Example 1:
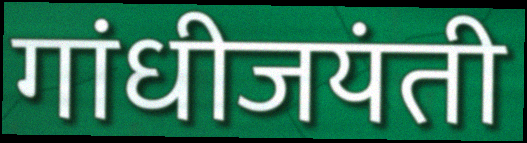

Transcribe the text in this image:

गांधीजयंती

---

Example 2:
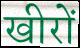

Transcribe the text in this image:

खीरों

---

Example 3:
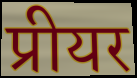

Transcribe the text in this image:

प्रीयर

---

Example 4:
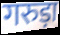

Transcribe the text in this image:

गरुड़ा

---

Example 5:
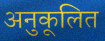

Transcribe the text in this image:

अनुकूलित